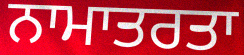
ਨਾਮਾਤਰਤਾ